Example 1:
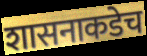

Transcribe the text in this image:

शासनाकडेच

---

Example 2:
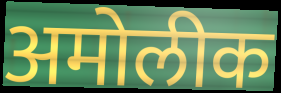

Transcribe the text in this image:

अमोलीक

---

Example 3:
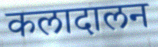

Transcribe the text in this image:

कलादालन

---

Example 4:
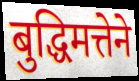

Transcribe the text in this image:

बुद्धिमत्तेने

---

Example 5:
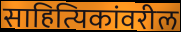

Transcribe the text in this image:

साहित्यिकांवरील